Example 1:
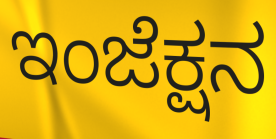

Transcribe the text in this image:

ಇಂಜೆಕ್ಷನ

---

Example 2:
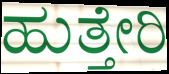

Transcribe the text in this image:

ಹುತ್ತೇರಿ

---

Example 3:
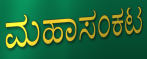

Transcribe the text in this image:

ಮಹಾಸಂಕಟ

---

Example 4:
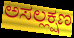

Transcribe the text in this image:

ಅಸಲ್ಲಕ್ಷಣ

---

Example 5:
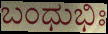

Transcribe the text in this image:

ಬಂಧುಭಿಃ